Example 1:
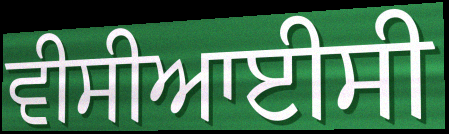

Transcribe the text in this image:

ਵੀਸੀਆਈਸੀ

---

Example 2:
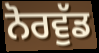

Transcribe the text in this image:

ਨੋਰਵੁੱਡ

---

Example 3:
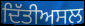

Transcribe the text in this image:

ਦਿੱਤੀਅਸਲ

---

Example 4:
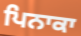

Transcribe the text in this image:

ਪਿਨਾਕਾ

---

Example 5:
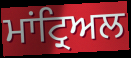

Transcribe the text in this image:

ਮਾਂਟ੍ਰਿਅਲ